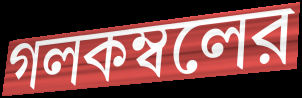
গলকম্বলের